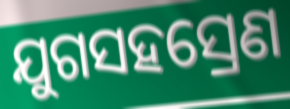
ଯୁଗସହସ୍ରେଣ